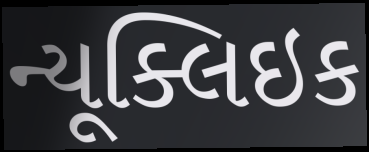
ન્યૂક્લિઇક